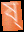
ষ্